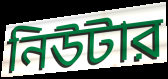
নিউটার